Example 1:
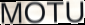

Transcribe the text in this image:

MOTU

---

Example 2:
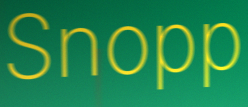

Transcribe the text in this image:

Snopp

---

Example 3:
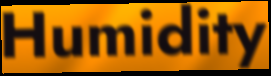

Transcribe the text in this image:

Humidity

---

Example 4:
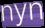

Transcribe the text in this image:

nyn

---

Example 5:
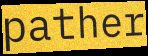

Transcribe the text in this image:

pather